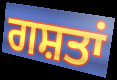
ਗਸ਼ਤਾਂ